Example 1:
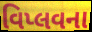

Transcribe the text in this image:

વિપ્લવના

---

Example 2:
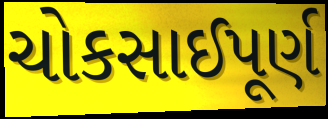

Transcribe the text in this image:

ચોકસાઈપૂર્ણ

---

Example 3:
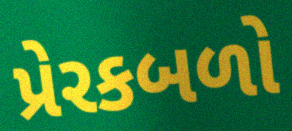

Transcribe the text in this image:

પ્રેરકબળો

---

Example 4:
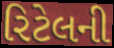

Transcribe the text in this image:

રિટેલની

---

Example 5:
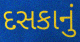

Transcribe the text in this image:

દસકાનું